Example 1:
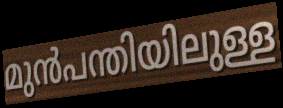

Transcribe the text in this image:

മുൻപന്തിയിലുള്ള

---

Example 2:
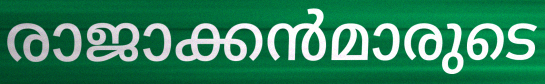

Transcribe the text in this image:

രാജാക്കൻമാരുടെ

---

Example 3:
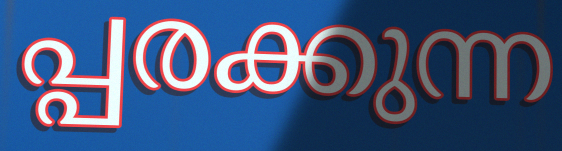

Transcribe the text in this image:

പ്പരക്കുന്ന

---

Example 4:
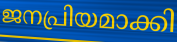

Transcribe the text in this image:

ജനപ്രിയമാക്കി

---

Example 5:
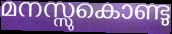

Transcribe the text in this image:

മനസ്സുകൊണ്ടു